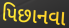
પિછાનવા